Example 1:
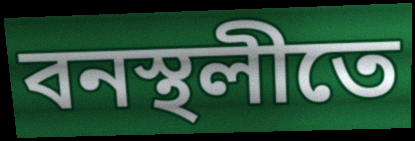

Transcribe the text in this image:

বনস্থলীতে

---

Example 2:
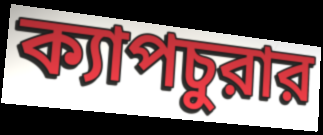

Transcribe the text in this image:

ক্যাপচুরার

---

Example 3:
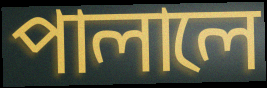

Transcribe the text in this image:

পালালে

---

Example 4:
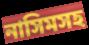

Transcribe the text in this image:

নাসিমসহ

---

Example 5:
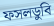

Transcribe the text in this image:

ফসলডুবি